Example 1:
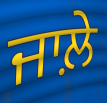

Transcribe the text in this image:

ਜਾਲ਼ੇ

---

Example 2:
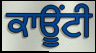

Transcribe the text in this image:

ਕਾਊਂਟੀ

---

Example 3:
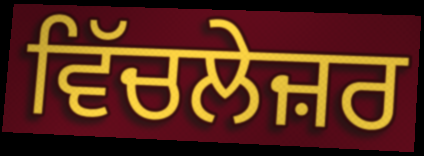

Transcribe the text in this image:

ਵਿੱਚਲੇਜ਼ਰ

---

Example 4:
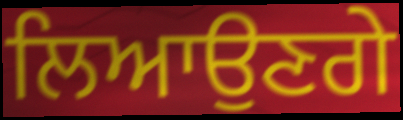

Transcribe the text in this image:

ਲਿਆਉਣਗੇ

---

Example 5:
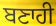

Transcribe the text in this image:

ਬਣਾਹੀ